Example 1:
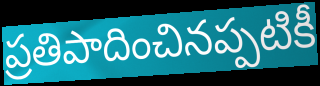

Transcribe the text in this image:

ప్రతిపాదించినప్పటికీ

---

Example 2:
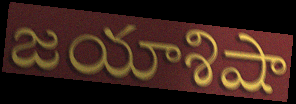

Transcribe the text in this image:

జయాశిషా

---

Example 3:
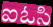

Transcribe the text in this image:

ఐఓసి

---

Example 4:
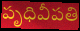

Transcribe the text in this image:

పృధివీపతి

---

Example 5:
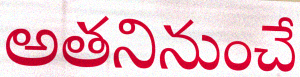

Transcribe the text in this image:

అతనినుంచే